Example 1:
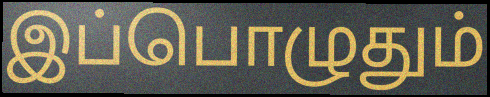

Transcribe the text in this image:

இப்பொழுதும்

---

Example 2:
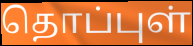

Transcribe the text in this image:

தொப்புள்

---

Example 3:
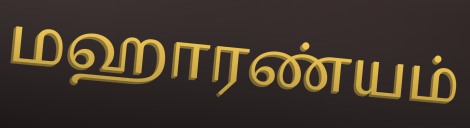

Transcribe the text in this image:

மஹாரண்யம்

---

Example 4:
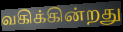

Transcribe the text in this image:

வகிக்கின்றது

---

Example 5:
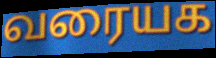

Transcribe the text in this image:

வரையக